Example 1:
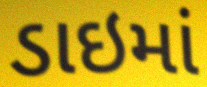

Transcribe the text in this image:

ડાઇમાં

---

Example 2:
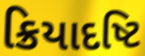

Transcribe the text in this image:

ક્રિયાદષ્ટિ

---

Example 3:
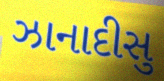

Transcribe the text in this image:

ઝાનાદીસુ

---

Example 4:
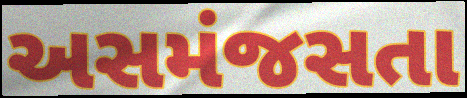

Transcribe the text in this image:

અસમંજસતા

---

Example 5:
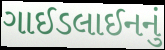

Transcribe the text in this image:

ગાઈડલાઈનનું